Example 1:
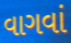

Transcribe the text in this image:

વાગવાં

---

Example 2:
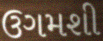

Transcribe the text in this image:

ઉગમશી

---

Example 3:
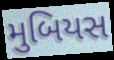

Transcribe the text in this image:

મુબિયસ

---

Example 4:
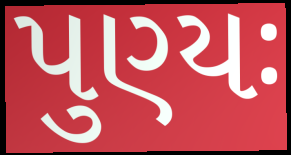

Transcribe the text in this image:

પુણ્યઃ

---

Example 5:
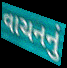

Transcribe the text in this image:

વાચનનું